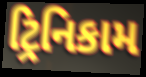
ટ્રિનિકામ